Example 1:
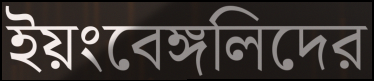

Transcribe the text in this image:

ইয়ংবেঙ্গলিদের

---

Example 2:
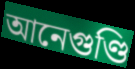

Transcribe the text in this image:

আনেগুণ্ডি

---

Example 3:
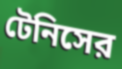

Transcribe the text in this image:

টেনিসের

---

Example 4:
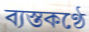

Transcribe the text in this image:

ব্যস্তকণ্ঠে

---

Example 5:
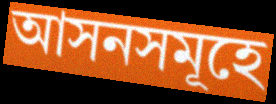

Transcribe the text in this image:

আসনসমূহে